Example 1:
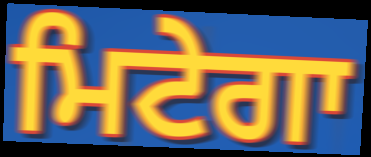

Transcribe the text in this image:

ਮਿਟੇਗਾ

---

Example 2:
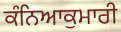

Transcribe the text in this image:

ਕੰਨਿਆਕੁਮਾਰੀ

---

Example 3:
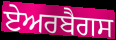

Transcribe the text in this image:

ਏਅਰਬੈਗਸ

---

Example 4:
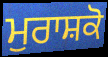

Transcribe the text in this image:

ਮੁਰਾਸ਼ਕੋ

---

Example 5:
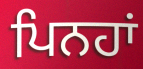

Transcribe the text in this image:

ਪਿਨਹਾਂ